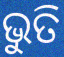
ଭୁତି